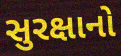
સુરક્ષાનો